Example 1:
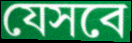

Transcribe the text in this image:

যেসবে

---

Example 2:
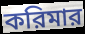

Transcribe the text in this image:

করিমার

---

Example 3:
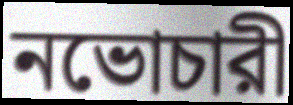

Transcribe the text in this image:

নভোচারী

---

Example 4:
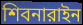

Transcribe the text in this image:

শিবনারাইন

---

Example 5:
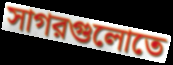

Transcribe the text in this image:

সাগরগুলোতে